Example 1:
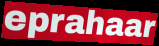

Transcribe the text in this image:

eprahaar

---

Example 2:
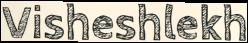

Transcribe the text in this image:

Visheshlekh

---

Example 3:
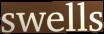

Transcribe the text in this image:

swells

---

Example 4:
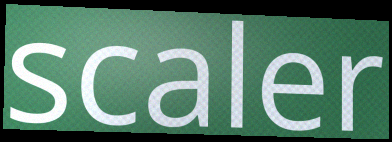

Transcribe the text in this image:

scaler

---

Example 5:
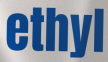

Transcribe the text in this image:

ethyl